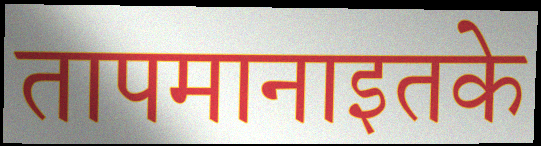
तापमानाइतके